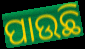
ପାଉଛି